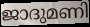
ജാദുമണി